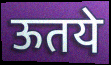
ऊतये